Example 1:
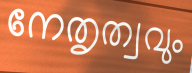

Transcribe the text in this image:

നേതൃത്വവും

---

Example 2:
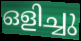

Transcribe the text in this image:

ഒളിച്ചു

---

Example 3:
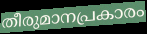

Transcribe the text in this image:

തീരുമാനപ്രകാരം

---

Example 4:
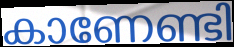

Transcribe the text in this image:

കാണേണ്ടി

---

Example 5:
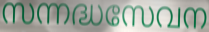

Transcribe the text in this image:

സന്നദ്ധസേവന